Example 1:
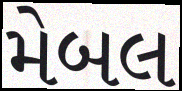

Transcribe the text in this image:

મેબલ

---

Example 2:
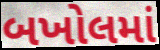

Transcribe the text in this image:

બખોલમાં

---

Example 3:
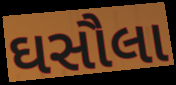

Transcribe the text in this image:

ઘસૌલા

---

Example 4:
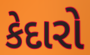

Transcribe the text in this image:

કેદારો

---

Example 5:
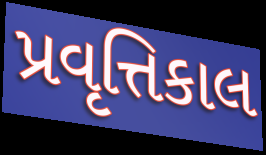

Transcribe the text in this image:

પ્રવૃત્તિકાલ